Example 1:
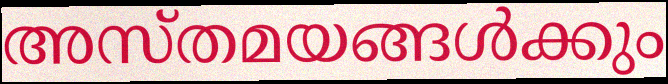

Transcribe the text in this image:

അസ്തമയങ്ങൾക്കും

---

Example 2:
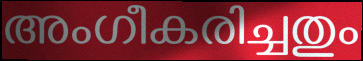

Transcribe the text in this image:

അംഗീകരിച്ചതും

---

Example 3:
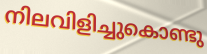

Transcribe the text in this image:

നിലവിളിച്ചുകൊണ്ടു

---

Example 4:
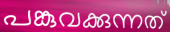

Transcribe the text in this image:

പങ്കുവക്കുന്നത്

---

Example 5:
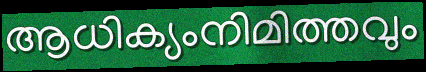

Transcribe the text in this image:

ആധിക്യംനിമിത്തവും